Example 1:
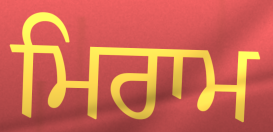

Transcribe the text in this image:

ਮਿਰਾਮ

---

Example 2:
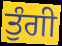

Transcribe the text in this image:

ਤੁੰਗੀ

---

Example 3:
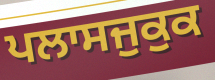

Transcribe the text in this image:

ਪਲਾਸਜੁਕੁਕ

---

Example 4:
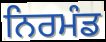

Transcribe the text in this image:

ਨਿਰਮੰਡ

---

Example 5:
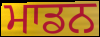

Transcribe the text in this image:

ਮਾਡਨ